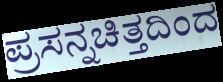
ಪ್ರಸನ್ನಚಿತ್ತದಿಂದ